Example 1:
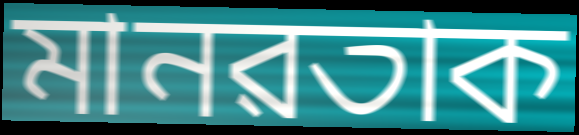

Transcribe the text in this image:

মানৱতাক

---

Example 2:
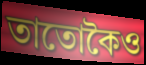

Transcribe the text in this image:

তাতোকৈও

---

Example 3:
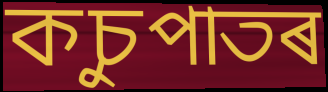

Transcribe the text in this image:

কচুপাতৰ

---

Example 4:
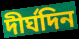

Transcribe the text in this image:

দীৰ্ঘদিন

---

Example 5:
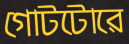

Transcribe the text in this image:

গোটটোৱে